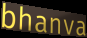
bhanva